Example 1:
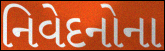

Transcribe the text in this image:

નિવેદનોના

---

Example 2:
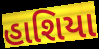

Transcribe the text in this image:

હાશિયા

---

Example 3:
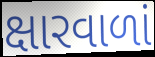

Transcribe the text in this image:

ક્ષારવાળાં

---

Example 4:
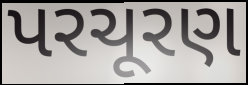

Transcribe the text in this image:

પરચૂરણ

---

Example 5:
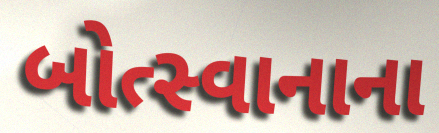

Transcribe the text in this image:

બોત્સ્વાનાના